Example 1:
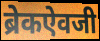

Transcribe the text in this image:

ब्रेकऐवजी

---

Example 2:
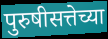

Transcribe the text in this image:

पुरुषीसत्तेच्या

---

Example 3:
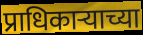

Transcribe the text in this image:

प्राधिकाऱ्याच्या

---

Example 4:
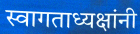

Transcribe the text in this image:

स्वागताध्यक्षांनी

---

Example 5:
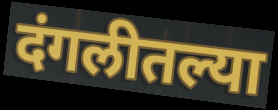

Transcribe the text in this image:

दंगलीतल्या